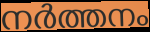
നർത്തനം